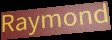
Raymond